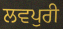
ਲਵਪੁਰੀ